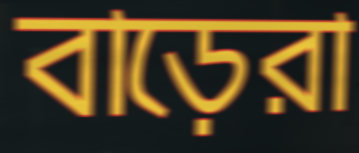
বাড়েরা